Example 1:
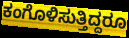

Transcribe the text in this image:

ಕಂಗೊಳಿಸುತ್ತಿದ್ದರೂ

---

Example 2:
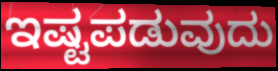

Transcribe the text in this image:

ಇಷ್ಟಪಡುವುದು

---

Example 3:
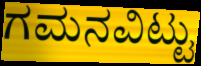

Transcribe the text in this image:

ಗಮನವಿಟ್ಟು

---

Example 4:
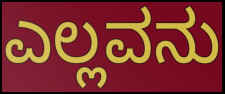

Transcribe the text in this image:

ಎಲ್ಲವನು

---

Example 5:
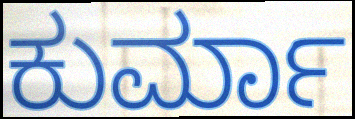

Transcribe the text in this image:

ಕುರ್ಮಾ